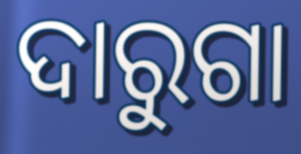
ଦାରୁଗା